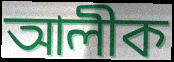
আলীক